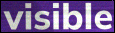
visible